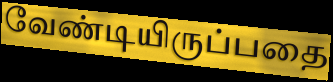
வேண்டியிருப்பதை